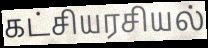
கட்சியரசியல்